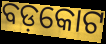
ବଡ଼କୋଟ